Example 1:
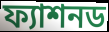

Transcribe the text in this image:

ফ্যাশনড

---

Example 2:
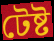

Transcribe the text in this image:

টেষ্ট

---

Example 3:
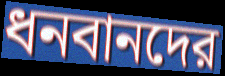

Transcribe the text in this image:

ধনবানদের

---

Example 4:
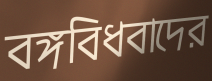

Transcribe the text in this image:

বঙ্গবিধবাদের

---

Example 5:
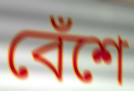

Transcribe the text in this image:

বেঁশে